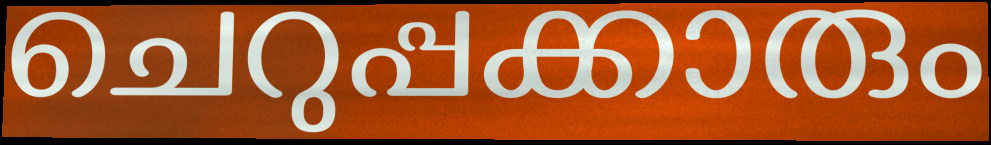
ചെറുപ്പക്കാരും